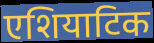
एशियाटिक